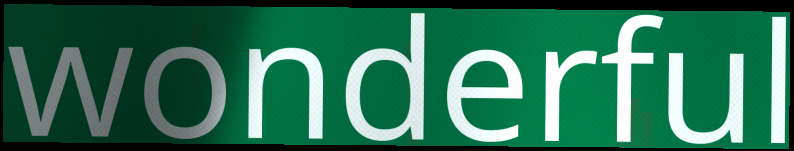
wonderful